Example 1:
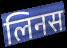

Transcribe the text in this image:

लिनस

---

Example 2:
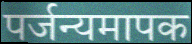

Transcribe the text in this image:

पर्जन्यमापक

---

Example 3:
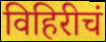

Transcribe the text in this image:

विहिरीचं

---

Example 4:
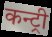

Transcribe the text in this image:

कन्ट्री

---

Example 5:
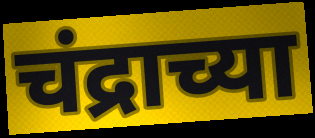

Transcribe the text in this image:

चंद्राच्या